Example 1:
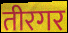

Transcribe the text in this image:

तीरगर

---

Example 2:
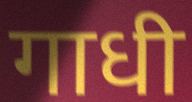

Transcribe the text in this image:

गाधी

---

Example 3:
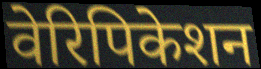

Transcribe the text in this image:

वेरिपिकेशन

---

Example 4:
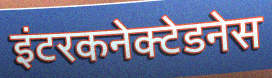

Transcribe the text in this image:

इंटरकनेक्टेडनेस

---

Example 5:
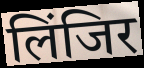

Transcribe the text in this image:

लिंजिर